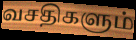
வசதிகளும்